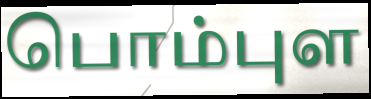
பொம்புள